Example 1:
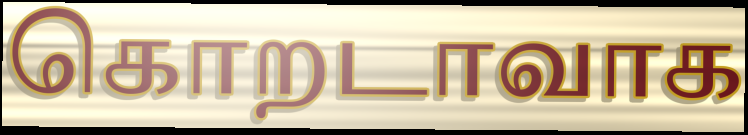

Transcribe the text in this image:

கொறடாவாக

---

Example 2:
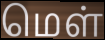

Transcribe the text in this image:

மெள்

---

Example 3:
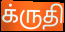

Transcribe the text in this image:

க்ருதி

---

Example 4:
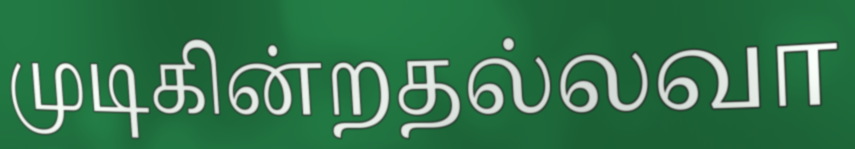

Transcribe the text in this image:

முடிகின்றதல்லவா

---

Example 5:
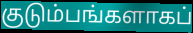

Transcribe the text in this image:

குடும்பங்களாகப்